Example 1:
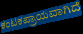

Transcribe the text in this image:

ಕಂಟಕಪ್ರಾಯವಾಗಿದೆ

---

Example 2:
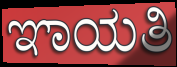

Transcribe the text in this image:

ಞಾಯತಿ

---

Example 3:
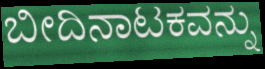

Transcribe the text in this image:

ಬೀದಿನಾಟಕವನ್ನು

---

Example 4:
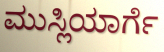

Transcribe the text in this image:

ಮುಸ್ಲಿಯಾರ್ಗೆ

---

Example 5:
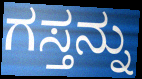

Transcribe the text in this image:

ಗಸ್ತನ್ನು